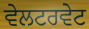
ਵੇਲਟਰਵੇਟ